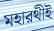
মহারথীই